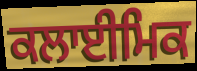
ਕਲਾਈਮਿਕ